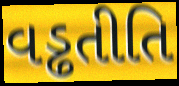
વડ્ઢતીતિ